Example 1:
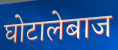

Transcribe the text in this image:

घोटालेबाज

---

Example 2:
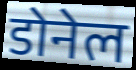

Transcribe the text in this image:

डोनेल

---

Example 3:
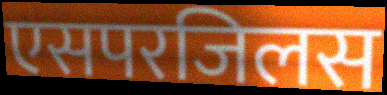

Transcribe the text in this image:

एसपरजिलस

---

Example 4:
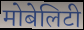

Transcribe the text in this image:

मोबेलिटी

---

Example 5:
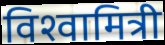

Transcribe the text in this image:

विश्वामित्री